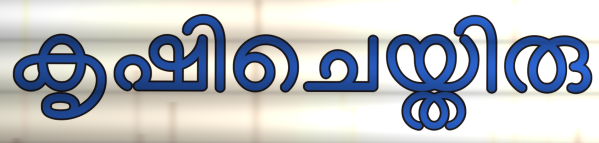
കൃഷിചെയ്തിരു